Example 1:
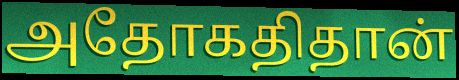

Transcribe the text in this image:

அதோகதிதான்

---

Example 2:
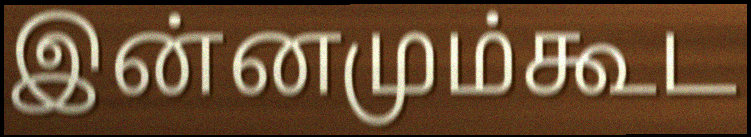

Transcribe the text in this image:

இன்னமும்கூட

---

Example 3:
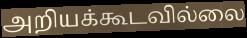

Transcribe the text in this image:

அறியக்கூடவில்லை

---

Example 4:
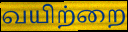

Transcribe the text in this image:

வயிற்றை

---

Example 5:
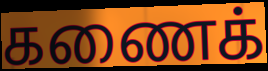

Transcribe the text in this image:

கணைக்